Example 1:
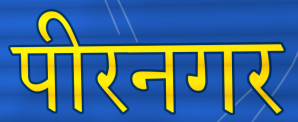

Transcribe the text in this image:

पीरनगर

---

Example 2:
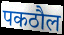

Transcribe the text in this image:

पकठौल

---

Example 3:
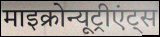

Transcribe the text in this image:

माइक्रोन्यूट्रीएंट्स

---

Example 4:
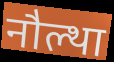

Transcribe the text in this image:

नौल्था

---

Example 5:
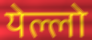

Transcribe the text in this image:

येल्लो